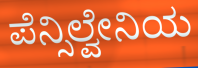
ಪೆನ್ಸಿಲ್ವೇನಿಯ